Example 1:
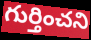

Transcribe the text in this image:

గుర్తించని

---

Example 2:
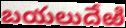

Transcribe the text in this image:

బయలుదేఱి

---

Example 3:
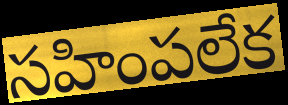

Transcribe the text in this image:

సహింపలేక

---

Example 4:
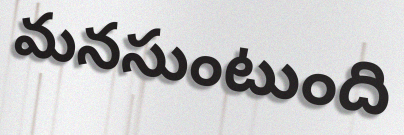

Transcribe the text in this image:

మనసుంటుంది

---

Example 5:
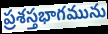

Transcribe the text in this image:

ప్రశస్తభాగమును